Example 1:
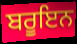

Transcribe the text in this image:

ਬਰੂਇਨ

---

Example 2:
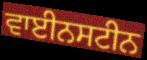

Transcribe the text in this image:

ਵਾਈਨਸਟੀਨ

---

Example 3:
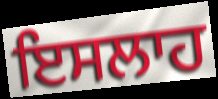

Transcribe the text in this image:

ਇਸਲਾਹ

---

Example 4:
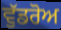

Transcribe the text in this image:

ਵੁੱਡਰੋਅ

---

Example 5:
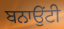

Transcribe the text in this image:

ਬਨਾਉਂਟੀ